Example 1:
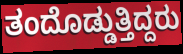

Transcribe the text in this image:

ತಂದೊಡ್ಡುತ್ತಿದ್ದರು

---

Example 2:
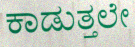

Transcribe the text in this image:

ಕಾಡುತ್ತಲೇ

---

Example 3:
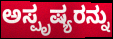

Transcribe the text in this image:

ಅಸ್ಪೃಷ್ಯರನ್ನು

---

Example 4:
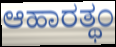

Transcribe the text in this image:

ಆಹಾರತ್ಥಂ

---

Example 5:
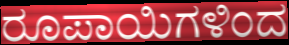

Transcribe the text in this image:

ರೂಪಾಯಿಗಳಿಂದ